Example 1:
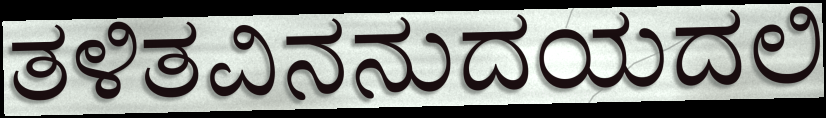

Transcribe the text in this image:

ತಳಿತವಿನನುದಯದಲಿ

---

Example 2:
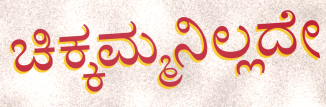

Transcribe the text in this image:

ಚಿಕ್ಕಮ್ಮನಿಲ್ಲದೇ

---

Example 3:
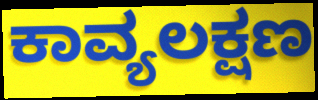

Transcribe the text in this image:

ಕಾವ್ಯಲಕ್ಷಣ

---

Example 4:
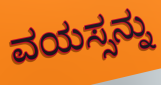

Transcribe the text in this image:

ವಯಸ್ಸನ್ನು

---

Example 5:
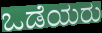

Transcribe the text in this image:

ಒಡೆಯರು